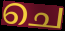
ചെ